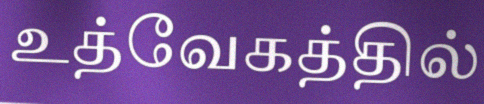
உத்வேகத்தில்